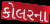
કોલરના